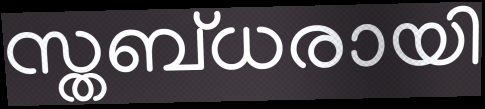
സ്തബ്ധരായി